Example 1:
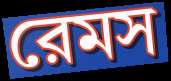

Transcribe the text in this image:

রেমস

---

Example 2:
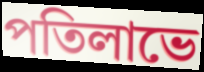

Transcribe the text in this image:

পতিলাভে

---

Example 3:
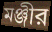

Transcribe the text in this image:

মঞ্জীর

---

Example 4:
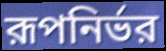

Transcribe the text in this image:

রূপনির্ভর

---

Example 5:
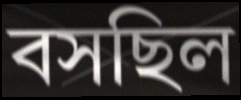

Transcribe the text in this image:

বসছিল